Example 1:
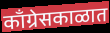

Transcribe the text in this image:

काँग्रेसकाळात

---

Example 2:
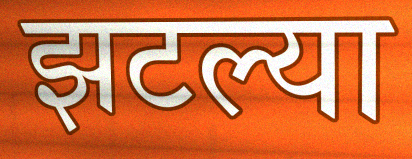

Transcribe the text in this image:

झटल्या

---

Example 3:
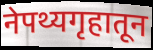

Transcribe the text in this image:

नेपथ्यगृहातून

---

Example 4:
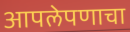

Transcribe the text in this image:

आपलेपणाचा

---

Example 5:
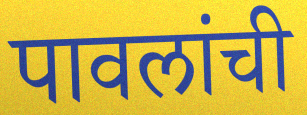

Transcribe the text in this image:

पावलांची